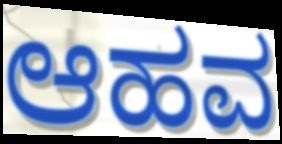
ಆಹವ